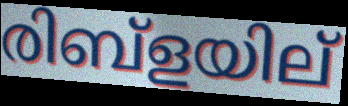
രിബ്ളയില്